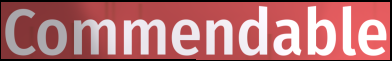
Commendable